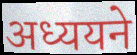
अध्ययने